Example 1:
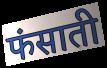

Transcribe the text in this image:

फंसाती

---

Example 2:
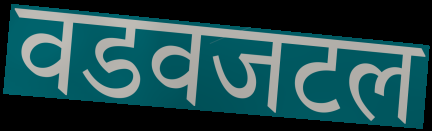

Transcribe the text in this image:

वडवजटल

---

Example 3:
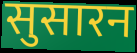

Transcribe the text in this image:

सुसारन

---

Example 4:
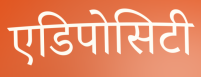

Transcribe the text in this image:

एडिपोसिटी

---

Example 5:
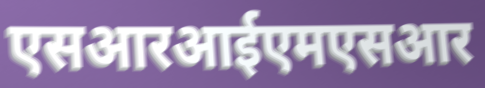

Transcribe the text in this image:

एसआरआईएमएसआर